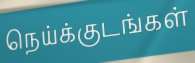
நெய்க்குடங்கள்